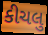
કીચલુ